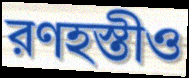
রণহস্তীও